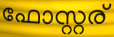
ഫോസ്റ്റര്